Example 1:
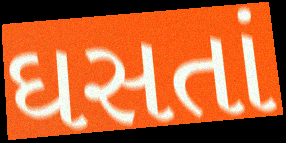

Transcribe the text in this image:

ઘસતાં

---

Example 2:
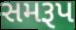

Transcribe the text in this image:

સમરૂપ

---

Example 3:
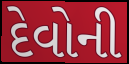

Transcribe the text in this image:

દેવોની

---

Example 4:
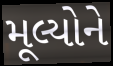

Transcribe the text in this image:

મૂલ્યોને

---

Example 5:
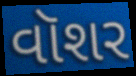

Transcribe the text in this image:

વૉશર